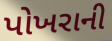
પોખરાની